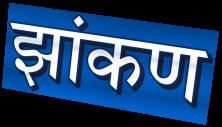
झांकण